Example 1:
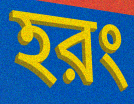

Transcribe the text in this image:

হরং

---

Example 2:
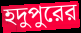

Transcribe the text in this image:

হদুপুরের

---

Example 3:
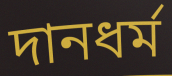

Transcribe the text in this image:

দানধর্ম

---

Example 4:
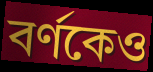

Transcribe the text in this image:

বর্ণকেও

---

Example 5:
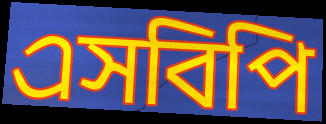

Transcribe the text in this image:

এসবিপি